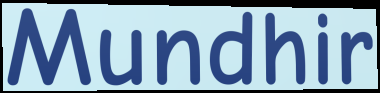
Mundhir